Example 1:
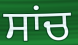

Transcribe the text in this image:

ਸਾਂਚ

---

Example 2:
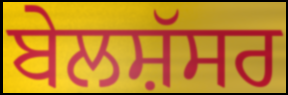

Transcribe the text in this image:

ਬੇਲਸ਼ੱਸਰ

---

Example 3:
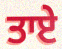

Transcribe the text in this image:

ਤਾਏ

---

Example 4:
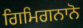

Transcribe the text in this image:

ਗਿਮਿਗਨਾਨੋ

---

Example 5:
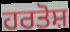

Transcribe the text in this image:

ਹਰਤੋਸ਼